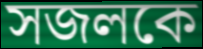
সজলকে